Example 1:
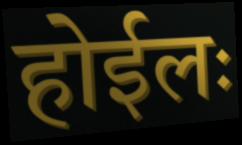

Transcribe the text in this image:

होईलः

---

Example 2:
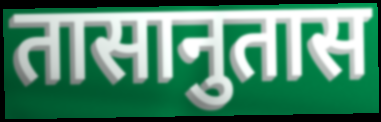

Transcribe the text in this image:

तासानुतास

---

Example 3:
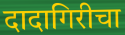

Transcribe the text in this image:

दादागिरीचा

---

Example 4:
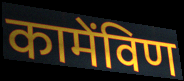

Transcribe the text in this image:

कामेंविण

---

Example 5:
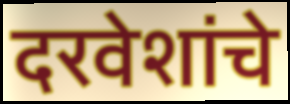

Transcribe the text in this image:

दरवेशांचे